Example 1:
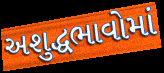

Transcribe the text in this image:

અશુદ્ધભાવોમાં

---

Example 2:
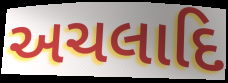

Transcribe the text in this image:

અચલાદિ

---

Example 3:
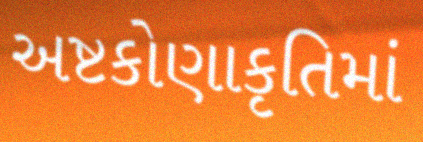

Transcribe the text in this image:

અષ્ટકોણાકૃતિમાં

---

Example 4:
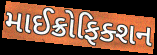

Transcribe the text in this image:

માઈક્રોફિક્શન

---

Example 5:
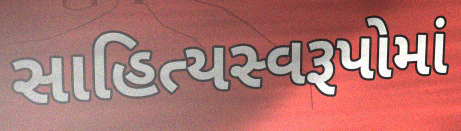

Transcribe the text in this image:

સાહિત્યસ્વરૂપોમાં